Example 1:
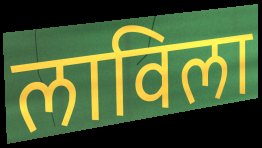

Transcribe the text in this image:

लाविला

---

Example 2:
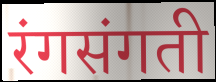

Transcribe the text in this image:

रंगसंगती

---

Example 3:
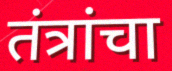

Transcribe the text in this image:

तंत्रांचा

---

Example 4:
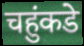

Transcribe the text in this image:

चहुंकडे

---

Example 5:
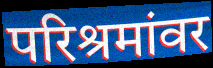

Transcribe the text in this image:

परिश्रमांवर